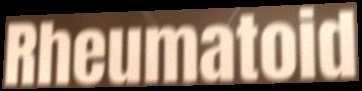
Rheumatoid